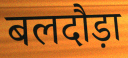
बलदौड़ा